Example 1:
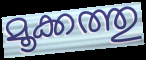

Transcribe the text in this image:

മൂക്കത്തു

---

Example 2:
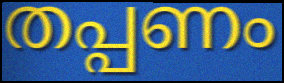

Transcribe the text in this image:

തപ്പണം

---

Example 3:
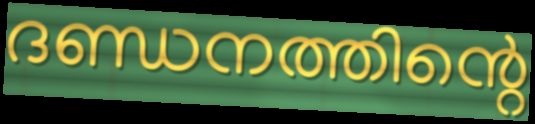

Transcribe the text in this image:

ദണ്ഡനത്തിന്റെ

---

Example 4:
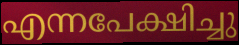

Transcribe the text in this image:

എന്നപേക്ഷിച്ചു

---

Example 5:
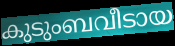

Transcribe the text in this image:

കുടുംബവീടായ